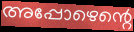
അപ്പോഴെന്റെ